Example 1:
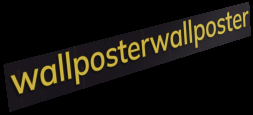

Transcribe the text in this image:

wallposterwallposter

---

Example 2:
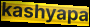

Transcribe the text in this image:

kashyapa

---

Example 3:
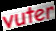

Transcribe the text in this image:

vuter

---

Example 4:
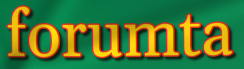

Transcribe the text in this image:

forumta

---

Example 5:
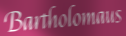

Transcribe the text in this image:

Bartholomaus